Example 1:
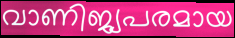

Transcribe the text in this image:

വാണിജ്യപരമായ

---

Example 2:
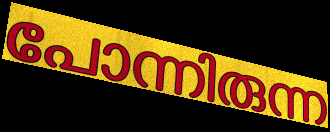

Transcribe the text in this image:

പോന്നിരുന്ന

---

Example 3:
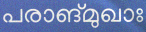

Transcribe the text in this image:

പരാങ്മുഖാഃ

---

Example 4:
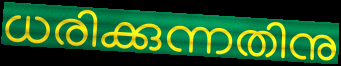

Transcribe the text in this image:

ധരിക്കുന്നതിനു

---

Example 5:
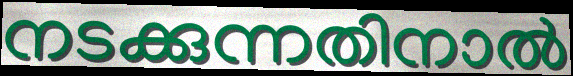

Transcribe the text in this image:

നടക്കുന്നതിനാൽ